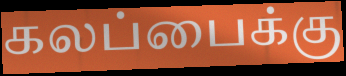
கலப்பைக்கு